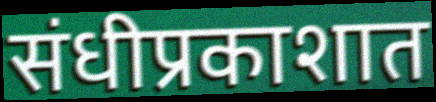
संधीप्रकाशात